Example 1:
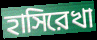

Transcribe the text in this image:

হাসিরেখা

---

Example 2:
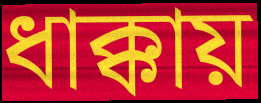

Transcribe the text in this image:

ধাক্কায়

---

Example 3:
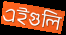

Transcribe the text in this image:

এইগুলি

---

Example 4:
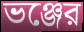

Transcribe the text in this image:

ভঞ্জের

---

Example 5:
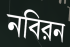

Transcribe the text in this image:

নবিরন